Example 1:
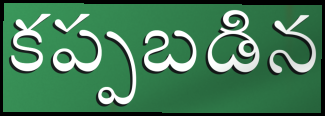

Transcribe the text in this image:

కప్పబడిన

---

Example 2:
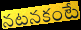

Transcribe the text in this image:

నటనకంటే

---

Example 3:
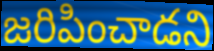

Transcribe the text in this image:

జరిపించాడని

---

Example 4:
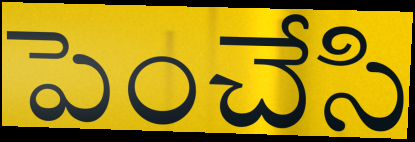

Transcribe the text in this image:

పెంచేసి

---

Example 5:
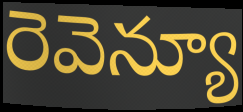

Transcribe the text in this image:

రెవెన్యూ